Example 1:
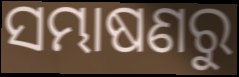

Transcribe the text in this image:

ସମ୍ଭାଷଣରୁ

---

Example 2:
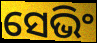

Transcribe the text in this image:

ସେଭିଂ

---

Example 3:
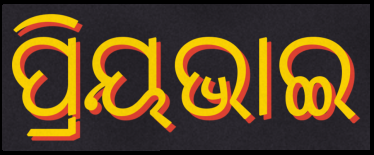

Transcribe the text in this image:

ପ୍ରିୟଭାଇ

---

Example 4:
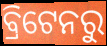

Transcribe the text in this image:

ବ୍ରିଟେନରୁ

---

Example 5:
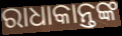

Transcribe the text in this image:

ରାଧାକାନ୍ତଙ୍କ